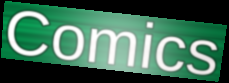
Comics